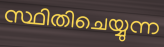
സ്ഥിതിചെയ്യുന്ന